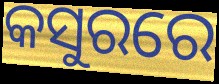
କସୁରରେ